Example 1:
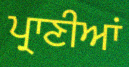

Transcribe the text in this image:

ਪ੍ਰਾਣੀਆਂ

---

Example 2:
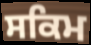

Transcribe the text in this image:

ਸਕਿਮ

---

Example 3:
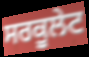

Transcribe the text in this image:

ਸਰਕੂਲੇਟ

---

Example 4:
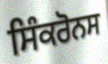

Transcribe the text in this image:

ਸਿੰਕਰੋਨਸ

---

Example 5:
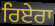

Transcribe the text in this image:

ਰਿਏਰਾ